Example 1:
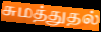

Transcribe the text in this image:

சுமத்துதல்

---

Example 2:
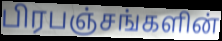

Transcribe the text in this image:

பிரபஞ்சங்களின்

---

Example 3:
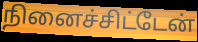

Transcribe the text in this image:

நினைச்சிட்டேன்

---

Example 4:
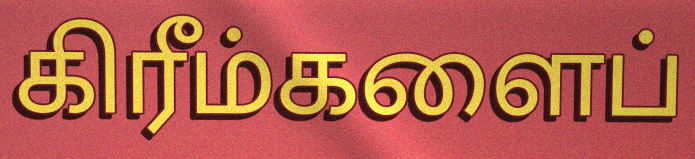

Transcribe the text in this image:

கிரீம்களைப்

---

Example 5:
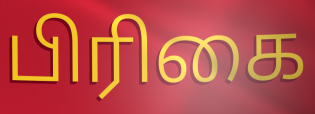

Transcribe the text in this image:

பிரிகை